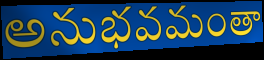
అనుభవమంతా